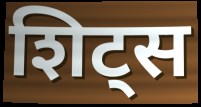
शिट्स